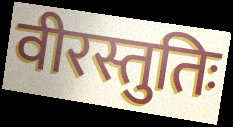
वीरस्तुतिः